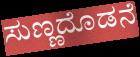
ಸುಣ್ಣದೊಡನೆ